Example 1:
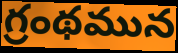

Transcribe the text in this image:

గ్రంథమున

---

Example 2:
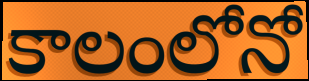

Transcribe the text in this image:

కాలంలోనో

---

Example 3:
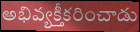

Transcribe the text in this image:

అభివ్యక్తీకరించాడు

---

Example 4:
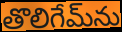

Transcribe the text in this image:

తొలిగేమ్‌ను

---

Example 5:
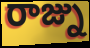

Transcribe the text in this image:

రాజ్ను